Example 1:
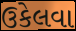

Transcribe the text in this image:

ઉકેલવા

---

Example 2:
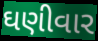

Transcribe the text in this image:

ઘણીવાર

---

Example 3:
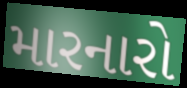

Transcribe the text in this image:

મારનારો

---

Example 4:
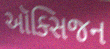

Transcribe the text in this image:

ઑક્સિજન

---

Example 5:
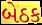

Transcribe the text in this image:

બેઠક